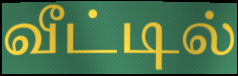
வீட்டில்